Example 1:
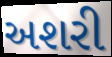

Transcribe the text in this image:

અશરી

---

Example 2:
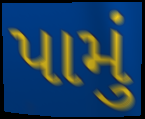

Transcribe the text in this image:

પામું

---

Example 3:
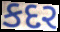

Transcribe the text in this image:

કદર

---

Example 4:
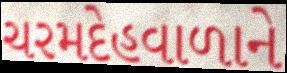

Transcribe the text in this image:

ચરમદેહવાળાને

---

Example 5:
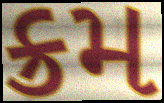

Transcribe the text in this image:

ક્રમ